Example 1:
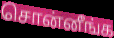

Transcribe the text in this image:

சொன்னீங்க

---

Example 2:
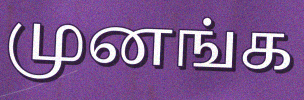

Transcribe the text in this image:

முனங்க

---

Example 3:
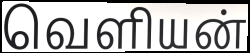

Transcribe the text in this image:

வெளியன்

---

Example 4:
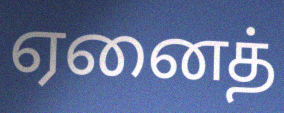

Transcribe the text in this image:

ஏனைத்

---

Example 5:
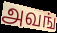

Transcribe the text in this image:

அவங்